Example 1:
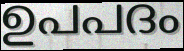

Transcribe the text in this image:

ഉപപദം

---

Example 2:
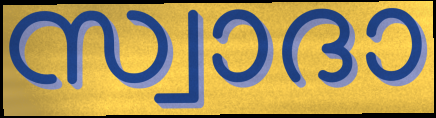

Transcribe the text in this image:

സ്വാദാ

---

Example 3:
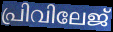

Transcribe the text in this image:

പ്രിവിലേജ്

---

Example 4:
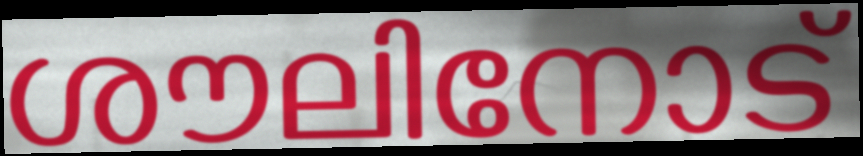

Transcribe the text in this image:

ശൗലിനോട്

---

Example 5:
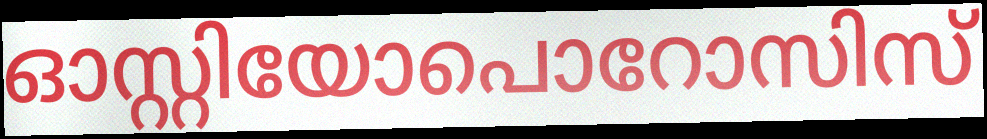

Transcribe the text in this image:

ഓസ്റ്റിയോപൊറോസിസ്